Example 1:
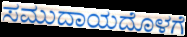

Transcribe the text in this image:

ಸಮುದಾಯದೊಳಗೆ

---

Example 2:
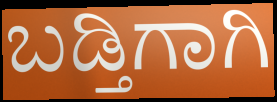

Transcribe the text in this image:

ಬಡ್ತಿಗಾಗಿ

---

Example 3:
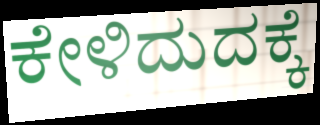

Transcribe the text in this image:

ಕೇಳಿದುದಕ್ಕೆ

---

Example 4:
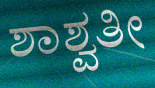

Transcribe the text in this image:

ಶಾಶ್ವತೀ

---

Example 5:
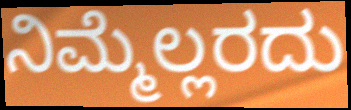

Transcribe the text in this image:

ನಿಮ್ಮೆಲ್ಲರದು